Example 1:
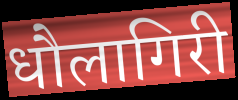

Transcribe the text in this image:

धौलागिरी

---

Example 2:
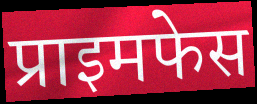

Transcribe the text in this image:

प्राइमफेस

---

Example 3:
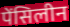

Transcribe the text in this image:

पेंसिलीन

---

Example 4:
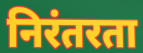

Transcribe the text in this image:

निरंतरता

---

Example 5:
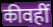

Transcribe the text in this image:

कीवहीं